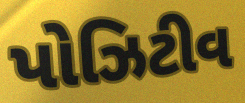
પોઝિટીવ